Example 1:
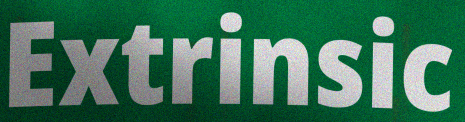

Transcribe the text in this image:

Extrinsic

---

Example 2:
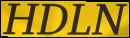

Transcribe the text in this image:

HDLN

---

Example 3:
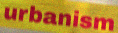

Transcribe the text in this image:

urbanism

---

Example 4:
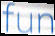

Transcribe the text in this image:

fun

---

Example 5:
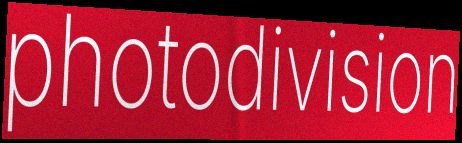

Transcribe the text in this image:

photodivision